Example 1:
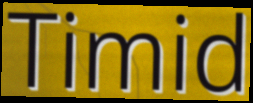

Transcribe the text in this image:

Timid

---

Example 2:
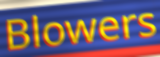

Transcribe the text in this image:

Blowers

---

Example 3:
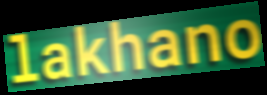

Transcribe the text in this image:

lakhano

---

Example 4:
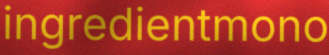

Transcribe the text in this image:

ingredientmono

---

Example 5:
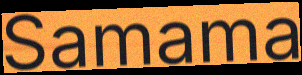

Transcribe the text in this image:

Samama